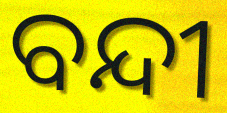
ବନ୍ଦୀ